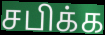
சபிக்க